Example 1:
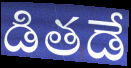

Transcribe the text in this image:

డితడే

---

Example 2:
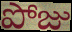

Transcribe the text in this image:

పోజు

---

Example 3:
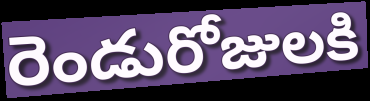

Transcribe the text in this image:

రెండురోజులకి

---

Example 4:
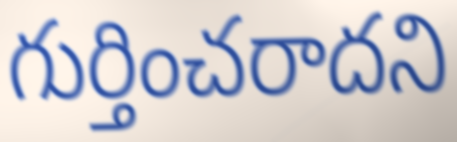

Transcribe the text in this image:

గుర్తించరాదని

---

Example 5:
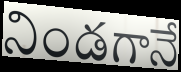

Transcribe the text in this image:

నిండగానే